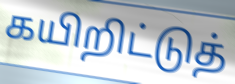
கயிறிட்டுத்